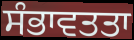
ਸੰਭਾਵਤਤਾ